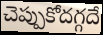
చెప్పుకోదగ్గదే